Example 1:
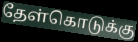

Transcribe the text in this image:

தேள்கொடுக்கு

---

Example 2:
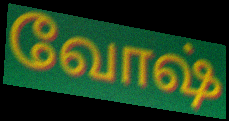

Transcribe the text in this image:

வோஷ்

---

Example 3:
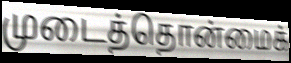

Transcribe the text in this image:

முடைத்தொன்மைக்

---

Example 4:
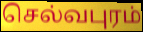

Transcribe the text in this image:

செல்வபுரம்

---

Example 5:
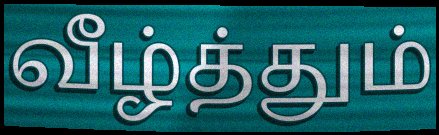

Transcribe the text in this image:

வீழ்த்தும்